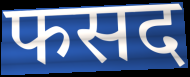
फसद